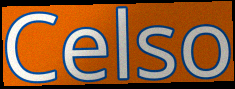
Celso